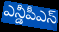
ఎన్డీపీఎస్